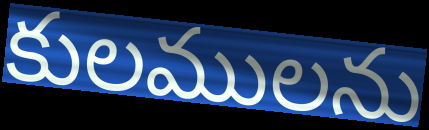
కులములను